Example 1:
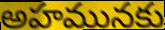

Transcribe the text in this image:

అహమునకు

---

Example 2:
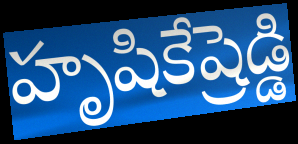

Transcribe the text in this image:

హృషికేష్రెడ్డి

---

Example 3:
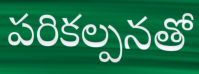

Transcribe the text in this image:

పరికల్పనతో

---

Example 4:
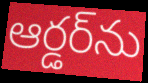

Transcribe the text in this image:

ఆర్డర్‌ను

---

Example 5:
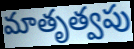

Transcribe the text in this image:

మాతృత్వపు